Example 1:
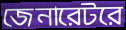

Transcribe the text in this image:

জেনারেটরে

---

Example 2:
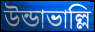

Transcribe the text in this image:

উন্ডাভাল্লি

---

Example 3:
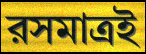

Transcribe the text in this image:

রসমাত্রই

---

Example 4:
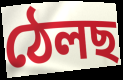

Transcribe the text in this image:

ঠেলছ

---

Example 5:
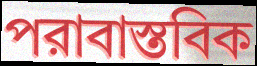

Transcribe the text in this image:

পরাবাস্তবিক